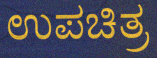
ಉಪಚಿತ್ರ